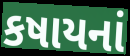
કષાયનાં